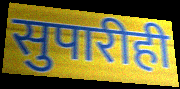
सुपारीही